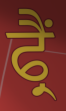
ਫ੍ਰੈਂ